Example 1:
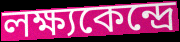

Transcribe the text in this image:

লক্ষ্যকেন্দ্রে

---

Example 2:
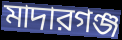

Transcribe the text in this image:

মাদারগঞ্জ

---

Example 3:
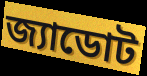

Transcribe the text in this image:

জ্যাডোট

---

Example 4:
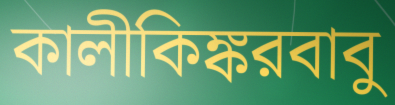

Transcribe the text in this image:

কালীকিঙ্করবাবু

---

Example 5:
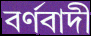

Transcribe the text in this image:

বর্ণবাদী